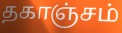
தகாஞ்சம்